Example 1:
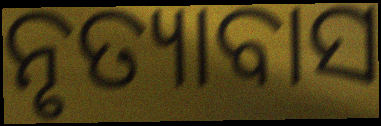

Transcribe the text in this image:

ନୃତ୍ୟାବାସ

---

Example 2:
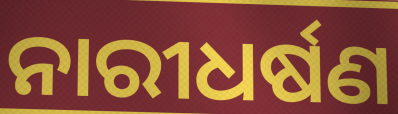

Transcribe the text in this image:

ନାରୀଧର୍ଷଣ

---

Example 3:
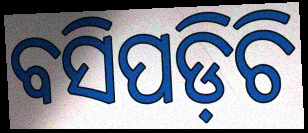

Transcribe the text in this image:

ବସିପଡ଼ିଚି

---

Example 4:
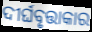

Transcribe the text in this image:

ଦୀର୍ଘବୃତ୍ତାକାର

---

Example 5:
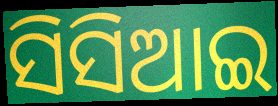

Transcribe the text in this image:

ସିସିଆଇ